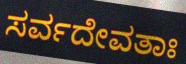
ಸರ್ವದೇವತಾಃ